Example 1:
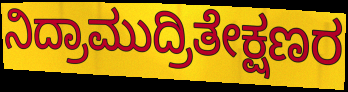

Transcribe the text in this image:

ನಿದ್ರಾಮುದ್ರಿತೇಕ್ಷಣರ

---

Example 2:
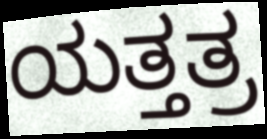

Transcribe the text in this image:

ಯತ್ತತ್ರ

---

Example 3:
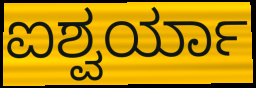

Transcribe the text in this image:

ಐಶ್ವರ್ಯಾ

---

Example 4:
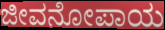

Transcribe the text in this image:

ಜೀವನೋಪಾಯ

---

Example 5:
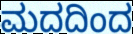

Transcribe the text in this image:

ಮದದಿಂದ